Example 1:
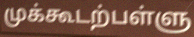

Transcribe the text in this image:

முக்கூடற்பள்ளு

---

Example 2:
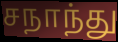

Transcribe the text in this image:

சநாந்து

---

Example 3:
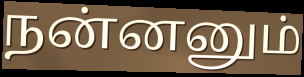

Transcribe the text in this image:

நன்னனும்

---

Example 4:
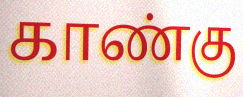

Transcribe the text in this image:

காண்கு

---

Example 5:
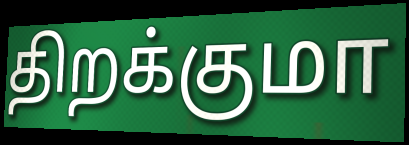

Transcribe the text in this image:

திறக்குமா